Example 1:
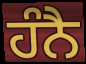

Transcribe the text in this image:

ਹੰਨੈ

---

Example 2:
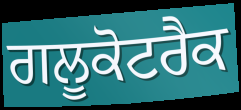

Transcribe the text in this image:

ਗਲੂਕੋਟਰੈਕ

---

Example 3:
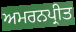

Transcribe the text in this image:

ਅਮਰਨਪ੍ਰੀਤ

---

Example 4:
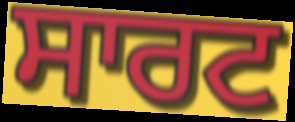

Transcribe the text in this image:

ਸਾਰਟ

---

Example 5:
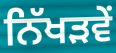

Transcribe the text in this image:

ਨਿੱਖੜਵੇਂ